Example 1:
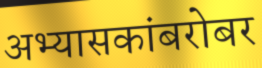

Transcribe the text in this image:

अभ्यासकांबरोबर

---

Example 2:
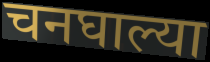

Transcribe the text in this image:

चनघाल्या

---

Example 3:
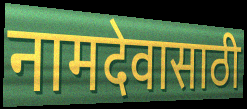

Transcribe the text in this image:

नामदेवासाठी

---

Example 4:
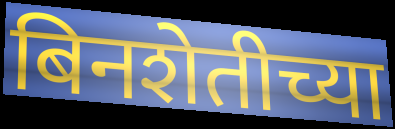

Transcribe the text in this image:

बिनशेतीच्या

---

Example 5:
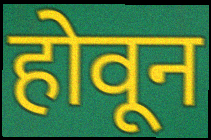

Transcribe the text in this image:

होवून